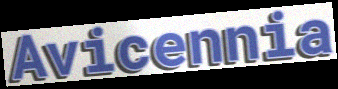
Avicennia